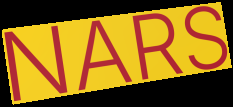
NARS